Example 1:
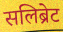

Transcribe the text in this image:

सलिब्रेट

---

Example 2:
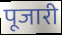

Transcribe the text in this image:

पूजारी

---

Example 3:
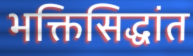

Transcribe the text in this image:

भक्तिसिद्धांत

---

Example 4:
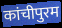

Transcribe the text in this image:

कांचीपुरम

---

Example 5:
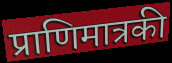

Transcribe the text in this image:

प्राणिमात्रकी